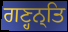
ਗਣ੍ਹਨ੍ਤਿ